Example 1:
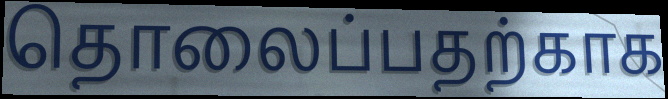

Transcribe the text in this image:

தொலைப்பதற்காக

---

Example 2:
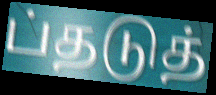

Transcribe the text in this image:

ப்தடுத்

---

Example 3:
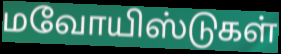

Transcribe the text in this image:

மவோயிஸ்டுகள்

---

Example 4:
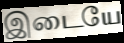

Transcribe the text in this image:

இடையே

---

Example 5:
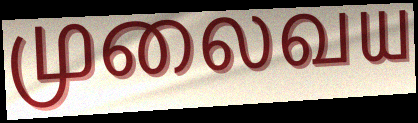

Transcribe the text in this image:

முலைவய